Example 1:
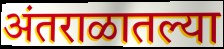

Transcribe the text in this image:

अंतराळातल्या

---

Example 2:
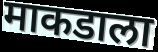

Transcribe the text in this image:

माकडाला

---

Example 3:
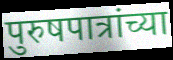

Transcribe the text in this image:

पुरुषपात्रांच्या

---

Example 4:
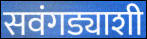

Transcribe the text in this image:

सवंगड्याशी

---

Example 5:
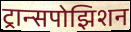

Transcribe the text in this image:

ट्रान्सपोझिशन